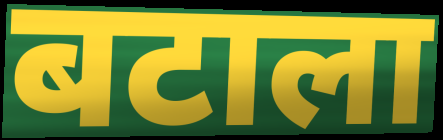
बटाला